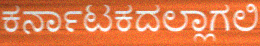
ಕರ್ನಾಟಕದಲ್ಲಾಗಲಿ